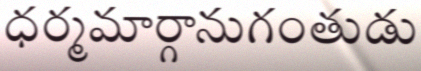
ధర్మమార్గానుగంతుడు